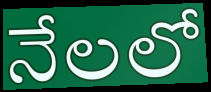
నేలలో